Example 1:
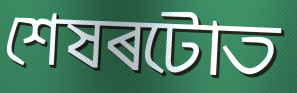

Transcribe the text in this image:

শেষৰটোত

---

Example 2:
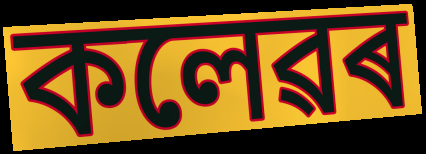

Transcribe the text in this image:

কলেৱৰ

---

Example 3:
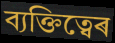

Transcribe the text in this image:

ব্যক্তিত্বেৰ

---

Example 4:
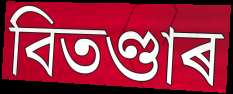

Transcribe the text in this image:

বিতণ্ডাৰ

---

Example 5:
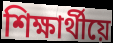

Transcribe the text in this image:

শিক্ষাৰ্থীয়ে